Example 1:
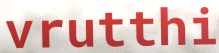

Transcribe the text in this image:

vrutthi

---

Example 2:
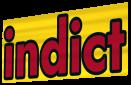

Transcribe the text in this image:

indict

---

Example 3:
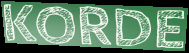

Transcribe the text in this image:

KORDE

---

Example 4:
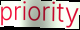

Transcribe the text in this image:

priority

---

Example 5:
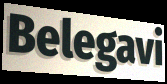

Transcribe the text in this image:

Belegavi